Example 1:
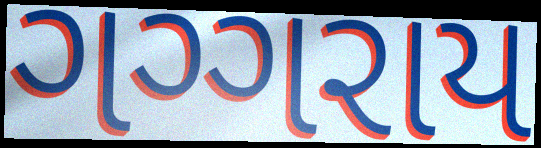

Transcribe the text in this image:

ગગ્ગરાય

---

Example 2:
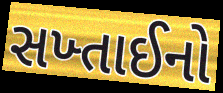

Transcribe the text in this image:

સખ્તાઈનો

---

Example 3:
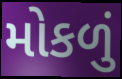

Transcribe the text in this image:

મોકળું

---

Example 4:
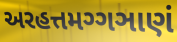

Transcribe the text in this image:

અરહત્તમગ્ગઞાણં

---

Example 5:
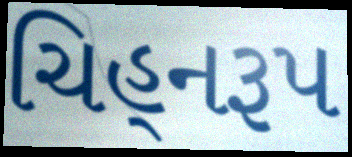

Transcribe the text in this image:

ચિહ્‌નરૂપ